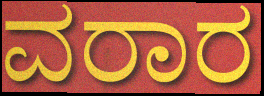
ವರಾರ